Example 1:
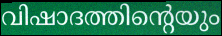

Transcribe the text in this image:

വിഷാദത്തിന്റെയും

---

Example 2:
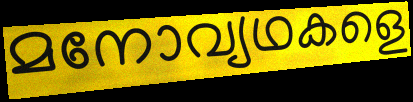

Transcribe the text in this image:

മനോവ്യഥകളെ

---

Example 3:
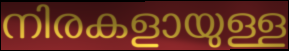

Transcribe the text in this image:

നിരകളായുള്ള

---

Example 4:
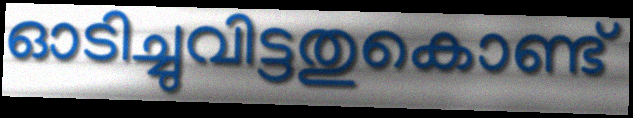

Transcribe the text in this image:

ഓടിച്ചുവിട്ടതുകൊണ്ട്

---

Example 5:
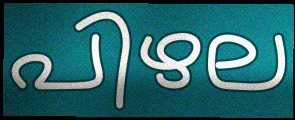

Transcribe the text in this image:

പിഴല